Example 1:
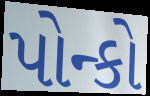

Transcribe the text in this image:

પોન્કો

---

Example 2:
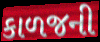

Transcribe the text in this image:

કાળજની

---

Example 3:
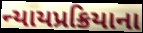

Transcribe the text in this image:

ન્યાયપ્રક્રિયાના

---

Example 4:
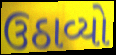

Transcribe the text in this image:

ઉઠાવ્યો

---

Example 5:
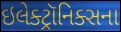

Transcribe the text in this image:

ઇલેક્ટ્રૉનિક્સના